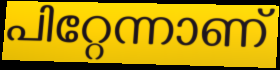
പിറ്റേന്നാണ്